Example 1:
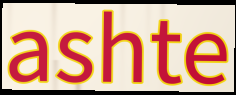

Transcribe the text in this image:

ashte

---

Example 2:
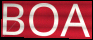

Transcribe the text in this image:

BOA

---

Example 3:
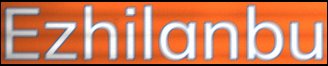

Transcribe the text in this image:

Ezhilanbu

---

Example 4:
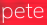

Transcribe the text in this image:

pete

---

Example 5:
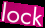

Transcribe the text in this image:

lock